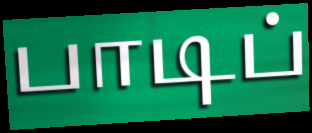
பாடிப்